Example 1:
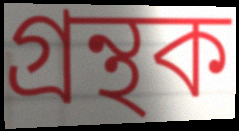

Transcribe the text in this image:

গ্ৰন্থক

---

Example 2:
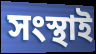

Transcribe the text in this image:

সংস্থাই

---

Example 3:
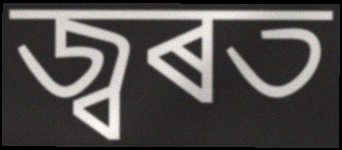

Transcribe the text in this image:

জ্বৰত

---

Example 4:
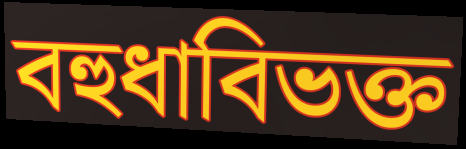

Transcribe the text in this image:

বহুধাবিভক্ত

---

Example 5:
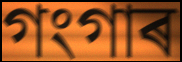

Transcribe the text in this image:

গংগাৰ